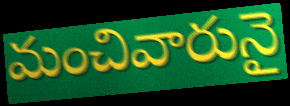
మంచివారునై